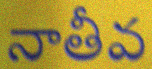
నాతీవ